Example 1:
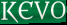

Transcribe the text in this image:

KEVO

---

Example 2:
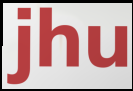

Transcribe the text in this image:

jhu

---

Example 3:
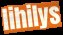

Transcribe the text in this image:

lihilys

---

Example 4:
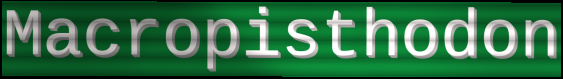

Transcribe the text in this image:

Macropisthodon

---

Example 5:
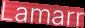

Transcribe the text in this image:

Lamarr